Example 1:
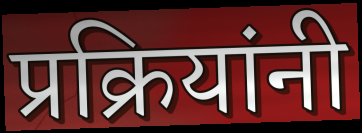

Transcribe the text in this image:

प्रक्रियांनी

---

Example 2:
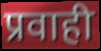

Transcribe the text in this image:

प्रवाही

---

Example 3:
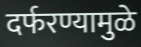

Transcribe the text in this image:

दर्फरण्यामुळे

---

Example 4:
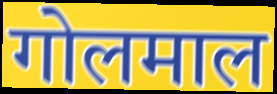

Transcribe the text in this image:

गोलमाल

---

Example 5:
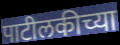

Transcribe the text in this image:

पाटीलकीच्या